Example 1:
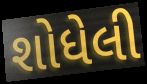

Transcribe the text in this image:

શોધેલી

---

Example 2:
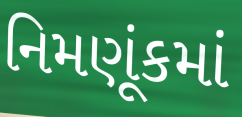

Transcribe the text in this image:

નિમણૂંકમાં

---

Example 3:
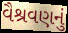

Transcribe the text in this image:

વૈશ્રવણનું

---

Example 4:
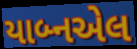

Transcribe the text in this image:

યાબ્નએલ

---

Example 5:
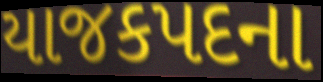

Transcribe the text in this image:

યાજકપદના